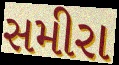
સમીરા